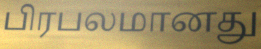
பிரபலமானது